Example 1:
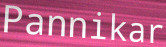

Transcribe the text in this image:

Pannikar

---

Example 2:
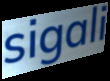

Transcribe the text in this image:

sigali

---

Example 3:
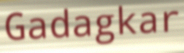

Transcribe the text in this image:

Gadagkar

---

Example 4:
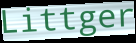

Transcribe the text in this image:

Littger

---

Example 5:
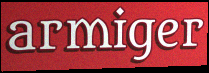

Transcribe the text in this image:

armiger